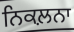
ਨਿਕਲ਼ਨਾ